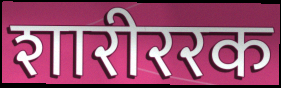
शारीररक